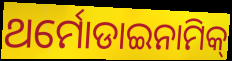
ଥର୍ମୋଡାଇନାମିକ୍